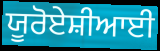
ਯੂਰੋਏਸ਼ੀਆਈ